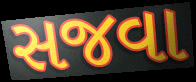
સજવા